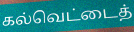
கல்வெட்டைத்